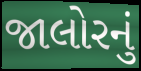
જાલોરનું